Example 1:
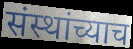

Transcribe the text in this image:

संस्थांच्याच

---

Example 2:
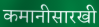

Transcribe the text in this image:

कमानीसारखी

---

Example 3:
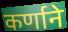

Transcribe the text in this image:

कर्णाने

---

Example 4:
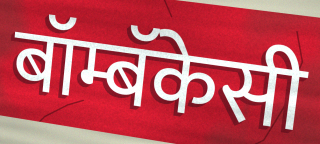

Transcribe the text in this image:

बॉम्बॅकेसी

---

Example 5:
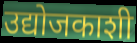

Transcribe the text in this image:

उद्योजकाशी